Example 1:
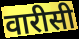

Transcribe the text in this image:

वारीसी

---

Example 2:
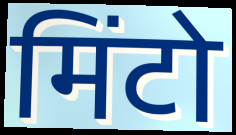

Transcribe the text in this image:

मिंटो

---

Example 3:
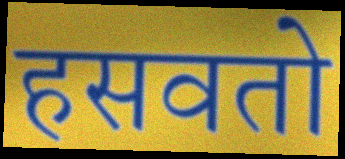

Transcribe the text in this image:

हसवतो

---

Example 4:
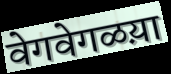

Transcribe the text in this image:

वेगवेगळय़ा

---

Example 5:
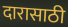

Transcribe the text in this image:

दारासाठी